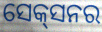
ସେକ୍‍ସନର